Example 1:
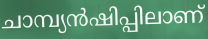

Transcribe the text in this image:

ചാമ്പ്യൻഷിപ്പിലാണ്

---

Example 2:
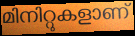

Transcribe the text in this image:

മിനിറ്റുകളാണ്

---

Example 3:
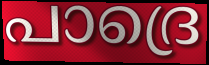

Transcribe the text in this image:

പാദ്രെ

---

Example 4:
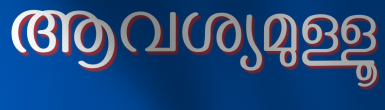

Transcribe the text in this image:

ആവശ്യമുള്ളൂ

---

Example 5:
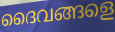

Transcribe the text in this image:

ദൈവങ്ങളെ